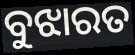
ବୁଝାରତ